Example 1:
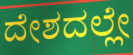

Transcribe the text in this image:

ದೇಶದಲ್ಲೇ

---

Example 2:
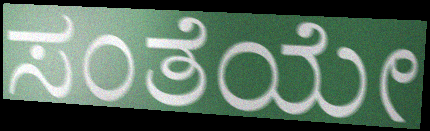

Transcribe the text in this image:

ಸಂತೆಯೇ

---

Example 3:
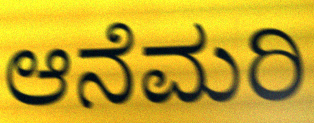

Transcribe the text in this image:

ಆನೆಮರಿ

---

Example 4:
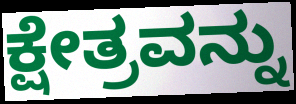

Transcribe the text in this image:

ಕ್ಷೇತ್ರವನ್ನು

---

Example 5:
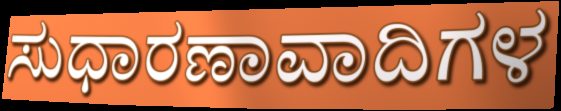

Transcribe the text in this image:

ಸುಧಾರಣಾವಾದಿಗಳ